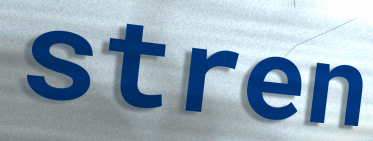
stren